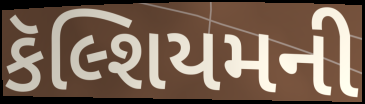
કૅલ્શિયમની